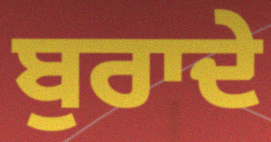
ਬੁਰਾਦੇ